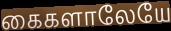
கைகளாலேயே